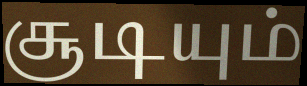
சூடியும்